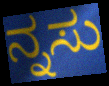
ನ್ನಸು